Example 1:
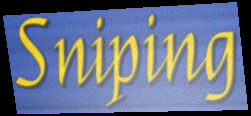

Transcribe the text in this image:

Sniping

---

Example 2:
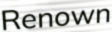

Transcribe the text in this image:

Renown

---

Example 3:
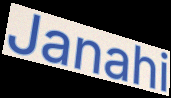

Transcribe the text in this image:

Janahi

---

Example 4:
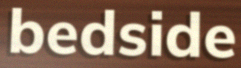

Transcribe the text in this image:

bedside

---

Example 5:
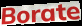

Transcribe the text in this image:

Borate